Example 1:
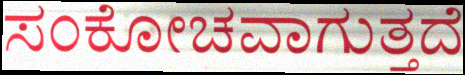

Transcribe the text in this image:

ಸಂಕೋಚವಾಗುತ್ತದೆ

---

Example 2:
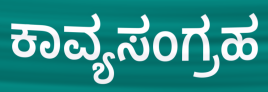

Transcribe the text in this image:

ಕಾವ್ಯಸಂಗ್ರಹ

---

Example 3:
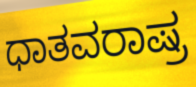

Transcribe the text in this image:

ಧಾತವರಾಷ್ರ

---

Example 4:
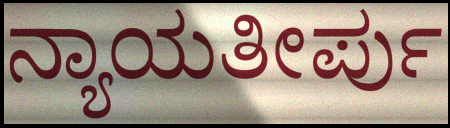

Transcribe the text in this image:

ನ್ಯಾಯತೀರ್ಪು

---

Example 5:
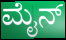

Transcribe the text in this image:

ಮೈನ್